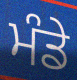
ਮੰਡੇ